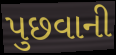
પુછવાની